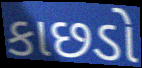
કાછડો